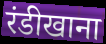
रंडीखाना